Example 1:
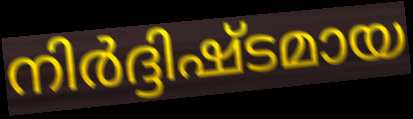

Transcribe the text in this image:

നിർദ്ദിഷ്ടമായ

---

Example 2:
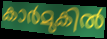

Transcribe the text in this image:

കാർമുകിൽ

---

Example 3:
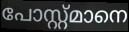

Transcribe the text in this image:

പോസ്റ്റ്മാനെ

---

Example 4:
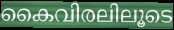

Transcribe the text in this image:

കൈവിരലിലൂടെ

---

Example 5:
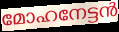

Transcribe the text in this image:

മോഹനേട്ടൻ